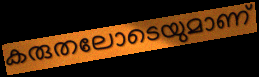
കരുതലോടെയുമാണ്